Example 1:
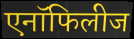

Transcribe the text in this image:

एनॉफिलीज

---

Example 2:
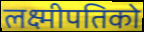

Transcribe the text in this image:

लक्ष्मीपतिको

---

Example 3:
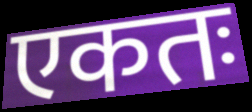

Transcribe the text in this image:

एकतः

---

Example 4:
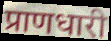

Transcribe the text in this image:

प्राणधारी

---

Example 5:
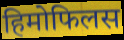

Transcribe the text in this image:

हिमोफिलस